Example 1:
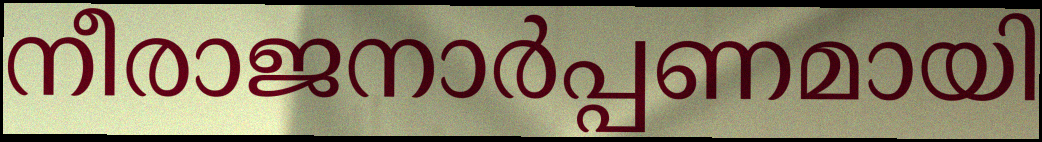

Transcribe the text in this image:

നീരാജനാർപ്പണമായി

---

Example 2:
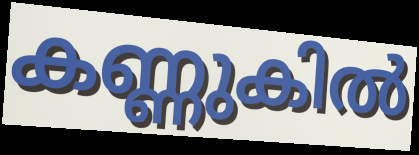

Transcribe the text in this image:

കണ്ണുകിൽ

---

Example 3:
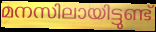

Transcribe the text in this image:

മനസിലായിട്ടുണ്ട്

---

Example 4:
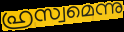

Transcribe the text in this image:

ഹ്രസ്വമെന്നു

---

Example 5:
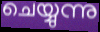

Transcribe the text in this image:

ചെയ്യുന്നു